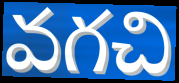
వగచి